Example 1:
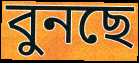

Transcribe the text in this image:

বুনছে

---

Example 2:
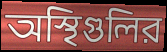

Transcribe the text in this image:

অস্থিগুলির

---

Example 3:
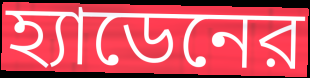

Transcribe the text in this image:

হ্যাডেনের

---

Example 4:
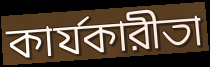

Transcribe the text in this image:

কার্যকারীতা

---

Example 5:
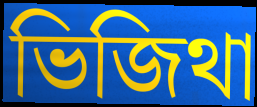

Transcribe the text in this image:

ভিজিথা